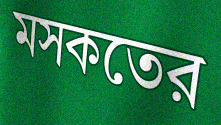
মসকতের